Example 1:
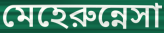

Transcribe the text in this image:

মেহেরুন্নেসা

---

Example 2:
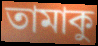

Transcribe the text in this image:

তামাকু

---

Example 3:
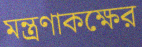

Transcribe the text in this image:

মন্ত্রণাকক্ষের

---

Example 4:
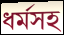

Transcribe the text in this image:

ধর্মসহ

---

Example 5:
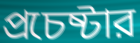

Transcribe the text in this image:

প্রচেষ্টার